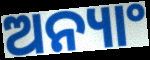
ଅନ୍ୟାଂ